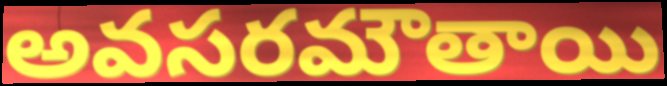
అవసరమౌతాయి